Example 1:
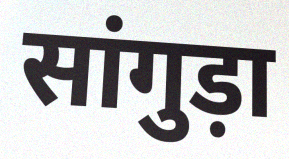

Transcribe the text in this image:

सांगुड़ा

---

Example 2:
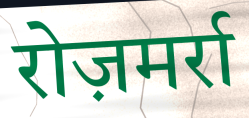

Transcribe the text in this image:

रोज़मर्रा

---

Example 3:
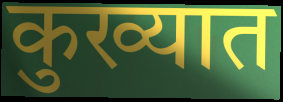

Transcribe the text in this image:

कुख्यात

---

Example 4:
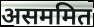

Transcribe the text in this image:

असममित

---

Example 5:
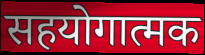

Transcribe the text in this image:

सहयोगात्मक